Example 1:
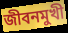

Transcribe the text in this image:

জীবনমুখী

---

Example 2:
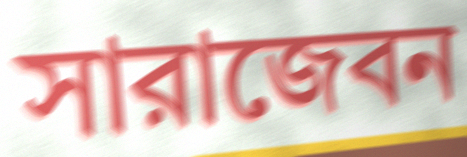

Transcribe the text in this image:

সারাজেবন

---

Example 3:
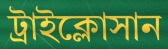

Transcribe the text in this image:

ট্রাইক্লোসান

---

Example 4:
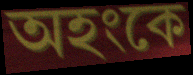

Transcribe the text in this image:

অহংকে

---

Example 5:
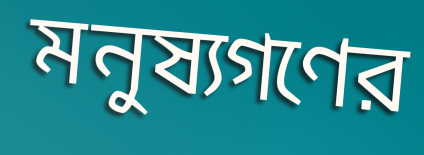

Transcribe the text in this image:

মনুষ্যগণের